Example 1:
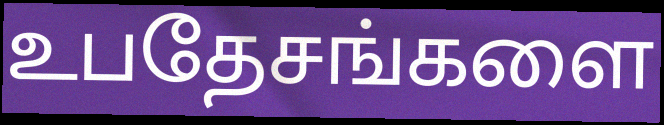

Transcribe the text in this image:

உபதேசங்களை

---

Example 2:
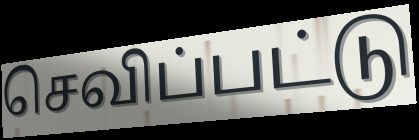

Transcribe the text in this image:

செவிப்பட்டு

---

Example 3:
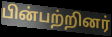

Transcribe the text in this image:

பின்பற்றினர்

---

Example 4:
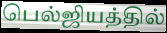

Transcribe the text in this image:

பெல்ஜியத்தில்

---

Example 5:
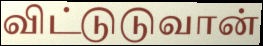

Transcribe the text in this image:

விட்டுடுவான்